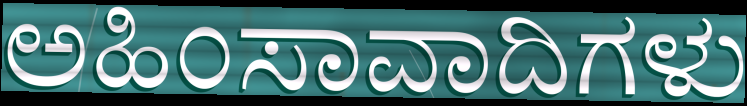
ಅಹಿಂಸಾವಾದಿಗಳು